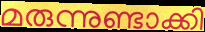
മരുന്നുണ്ടാക്കി